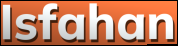
Isfahan